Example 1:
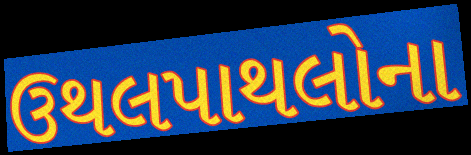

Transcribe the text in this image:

ઉથલપાથલોના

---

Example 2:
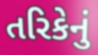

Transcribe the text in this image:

તરિકેનું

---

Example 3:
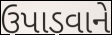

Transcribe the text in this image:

ઉપાડવાને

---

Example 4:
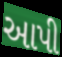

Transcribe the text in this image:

આપી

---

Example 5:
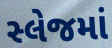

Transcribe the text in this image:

સ્લેજમાં